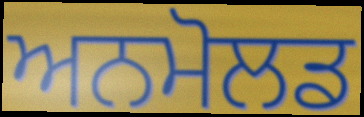
ਅਨਮੋਲਡ